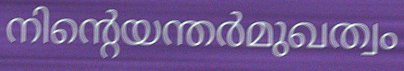
നിന്റെയന്തർമുഖത്വം